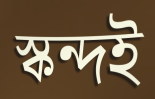
স্কন্দই